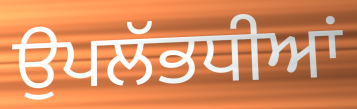
ਉਪਲੱਭਧੀਆਂ